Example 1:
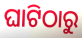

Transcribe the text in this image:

ଘାଟିଠାରୁ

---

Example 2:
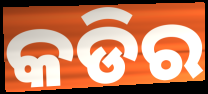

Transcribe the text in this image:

କଡିର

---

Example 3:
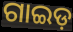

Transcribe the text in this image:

ଗାଇଡ଼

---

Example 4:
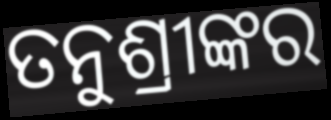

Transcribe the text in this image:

ତନୁଶ୍ରୀଙ୍କର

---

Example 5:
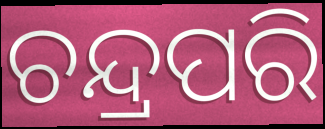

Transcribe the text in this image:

ଚନ୍ଦ୍ରପରି